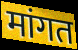
मांगत